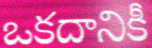
ఒకదానికీ